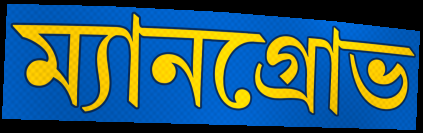
ম্যানগ্রোভ